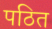
पठित